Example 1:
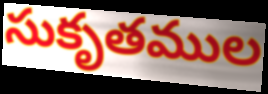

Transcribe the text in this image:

సుకృతముల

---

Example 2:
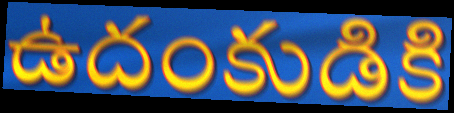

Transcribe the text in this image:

ఉదంకుడికి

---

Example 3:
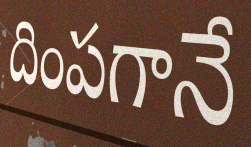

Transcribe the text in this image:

దింపగానే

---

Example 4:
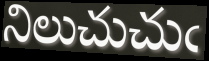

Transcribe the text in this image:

నిలుచుచుఁ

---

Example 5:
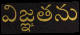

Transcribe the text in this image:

విజ్ఞతను